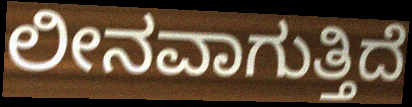
ಲೀನವಾಗುತ್ತಿದೆ